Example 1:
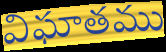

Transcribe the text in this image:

విఘాతము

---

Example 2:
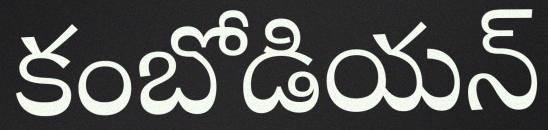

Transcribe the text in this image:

కంబోడియన్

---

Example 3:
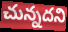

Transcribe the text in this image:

చున్నదని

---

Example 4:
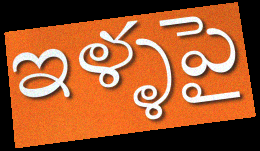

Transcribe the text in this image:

ఇళ్ళపై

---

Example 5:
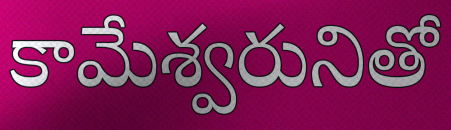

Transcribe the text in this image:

కామేశ్వరునితో